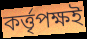
কৰ্ত্তৃপক্ষই